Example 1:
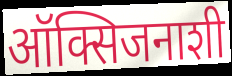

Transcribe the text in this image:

ऑक्सिजनाशी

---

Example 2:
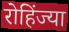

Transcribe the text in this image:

रोहिंज्या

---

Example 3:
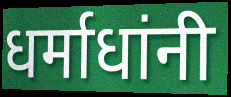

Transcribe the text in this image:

धर्माधांनी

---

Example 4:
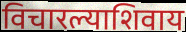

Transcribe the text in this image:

विचारल्याशिवाय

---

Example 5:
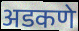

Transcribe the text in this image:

अडकणे